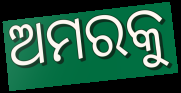
ଅମରକୁ